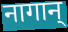
नागान्